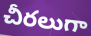
చీరలుగా